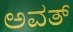
ಅವತ್